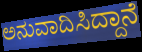
ಅನುವಾದಿಸಿದ್ದಾನೆ